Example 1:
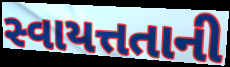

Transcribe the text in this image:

સ્વાયત્તતાની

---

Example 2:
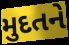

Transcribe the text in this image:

મુદતને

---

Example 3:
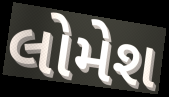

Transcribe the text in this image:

લોમેશ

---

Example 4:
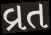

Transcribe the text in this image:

વ્રત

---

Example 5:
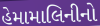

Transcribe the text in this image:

હેમામાલિનીનો